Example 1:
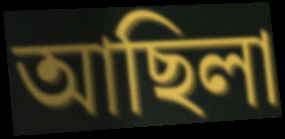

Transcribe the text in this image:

আছিলা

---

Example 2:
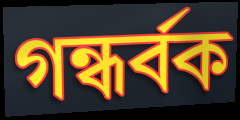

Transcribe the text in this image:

গন্ধৰ্বক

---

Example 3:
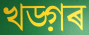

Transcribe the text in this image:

খড়্গৰ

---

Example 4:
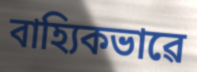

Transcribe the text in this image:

বাহ্যিকভাৱে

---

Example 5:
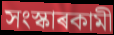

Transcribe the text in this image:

সংস্কাৰকামী